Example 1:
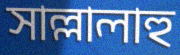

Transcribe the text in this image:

সাল্লালাহু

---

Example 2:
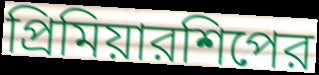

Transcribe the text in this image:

প্রিমিয়ারশিপের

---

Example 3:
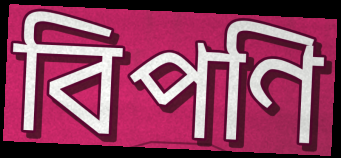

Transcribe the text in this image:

বিপণি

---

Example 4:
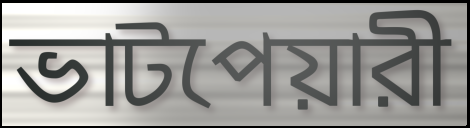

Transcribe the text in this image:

ভাটপেয়ারী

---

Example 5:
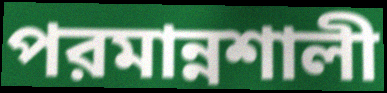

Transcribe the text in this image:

পরমান্নশালী